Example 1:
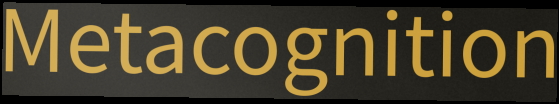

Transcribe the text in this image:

Metacognition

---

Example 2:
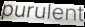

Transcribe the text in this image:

purulent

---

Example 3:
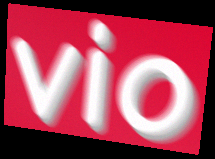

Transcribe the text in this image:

vio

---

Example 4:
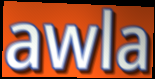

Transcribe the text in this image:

awla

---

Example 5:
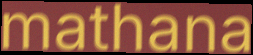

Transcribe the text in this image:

mathana